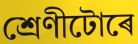
শ্ৰেণীটোৰে